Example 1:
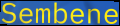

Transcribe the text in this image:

Sembene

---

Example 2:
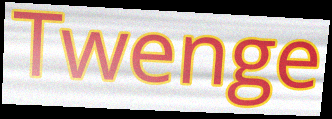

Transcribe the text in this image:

Twenge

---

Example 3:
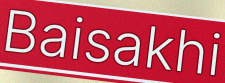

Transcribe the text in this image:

Baisakhi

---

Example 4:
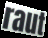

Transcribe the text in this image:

raut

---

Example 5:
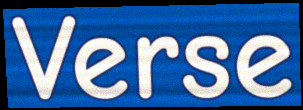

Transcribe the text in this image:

Verse